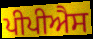
ਪੀਪੀਐਸ